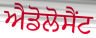
ਐਡੋਲੋਸੈਂਟ